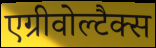
एग्रीवोल्टैक्स